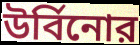
উর্বিনোর